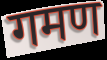
गमण